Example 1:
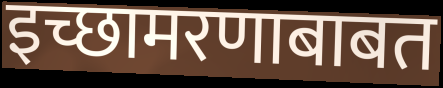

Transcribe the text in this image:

इच्छामरणाबाबत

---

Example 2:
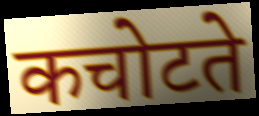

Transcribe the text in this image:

कचोटते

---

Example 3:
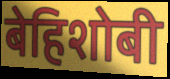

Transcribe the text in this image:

बेहिशोबी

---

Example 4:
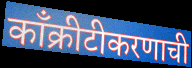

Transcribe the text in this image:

काँक्रीटीकरणाची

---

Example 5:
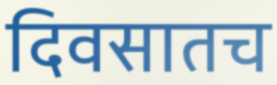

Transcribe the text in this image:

दिवसातच